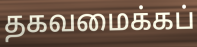
தகவமைக்கப்